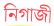
নিগাজী